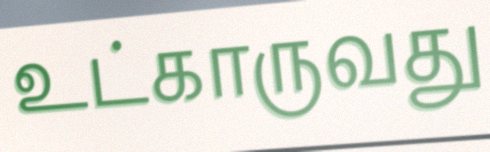
உட்காருவது